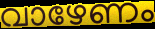
വാഴേണം